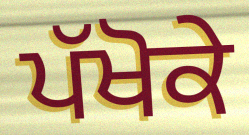
ਪੱਖੋਕੇ